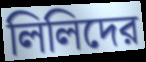
লিলিদের